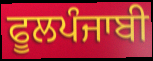
ਫੂਲਪੰਜਾਬੀ